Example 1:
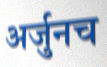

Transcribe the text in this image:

अर्जुनच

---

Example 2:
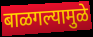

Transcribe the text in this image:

बाळगल्यामुळे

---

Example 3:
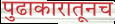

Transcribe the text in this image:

पुढाकारातूनच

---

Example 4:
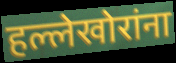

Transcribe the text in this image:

हल्लेखोरांना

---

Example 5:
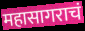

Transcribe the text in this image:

महासागराचं